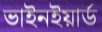
ভাইনইয়ার্ড